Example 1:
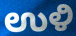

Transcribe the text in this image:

ಉಳಿ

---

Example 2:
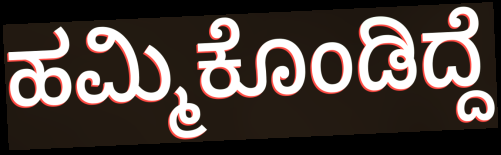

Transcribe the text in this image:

ಹಮ್ಮಿಕೊಂಡಿದ್ದೆ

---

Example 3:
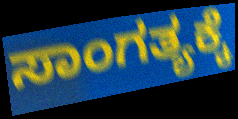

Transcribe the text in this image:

ಸಾಂಗತ್ಯಕ್ಕೆ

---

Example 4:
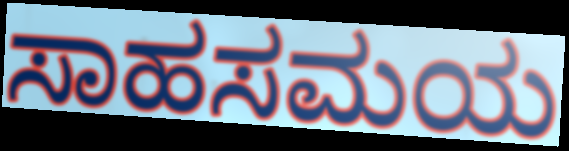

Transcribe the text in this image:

ಸಾಹಸಮಯ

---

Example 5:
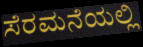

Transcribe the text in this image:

ಸೆರಮನೆಯಲ್ಲಿ